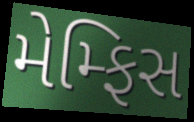
મેમ્ફિસ